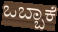
ಒಬ್ಬಾಕೆ